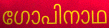
ഗോപിനാഥ